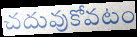
చదువుకోవటం